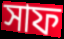
সাফ